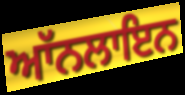
ਆੱਨਲਾਇਨ